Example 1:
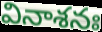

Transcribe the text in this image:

వినాశనః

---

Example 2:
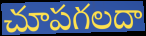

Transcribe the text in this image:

చూపగలదా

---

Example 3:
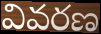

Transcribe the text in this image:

వివరణ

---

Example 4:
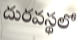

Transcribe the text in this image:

దురవస్థలో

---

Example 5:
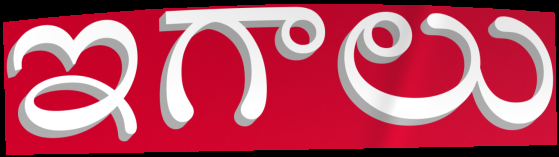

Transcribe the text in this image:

ఇగాలు